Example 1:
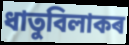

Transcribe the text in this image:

ধাতুবিলাকৰ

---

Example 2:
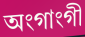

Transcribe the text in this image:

অংগাংগী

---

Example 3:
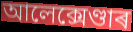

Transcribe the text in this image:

আলেক্সেণ্ডাৰ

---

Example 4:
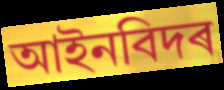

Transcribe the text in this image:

আইনবিদৰ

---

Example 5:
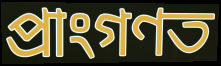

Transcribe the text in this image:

প্ৰাংগণত